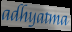
adhyatma